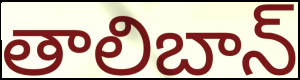
తాలిబాన్